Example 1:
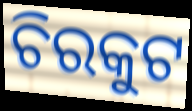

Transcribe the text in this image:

ଚିରକୁଟ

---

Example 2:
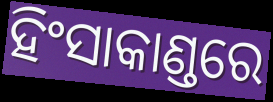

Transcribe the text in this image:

ହିଂସାକାଣ୍ଡରେ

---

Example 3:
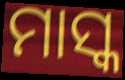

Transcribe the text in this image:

ମାସ୍କ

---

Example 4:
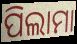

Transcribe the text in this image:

ପିଲାମା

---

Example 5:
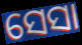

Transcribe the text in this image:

ସେସା